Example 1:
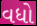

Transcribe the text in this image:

વધો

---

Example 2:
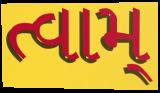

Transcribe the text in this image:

ત્વામ્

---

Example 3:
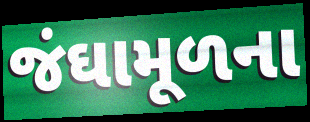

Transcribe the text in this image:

જંઘામૂળના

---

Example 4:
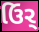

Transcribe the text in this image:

ઉિર્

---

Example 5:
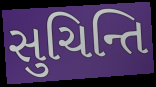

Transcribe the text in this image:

સુચિન્તિ